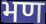
भण